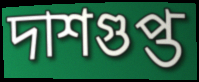
দাশগুপ্ত